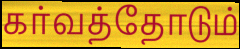
கர்வத்தோடும்